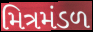
મિત્રમંડળ